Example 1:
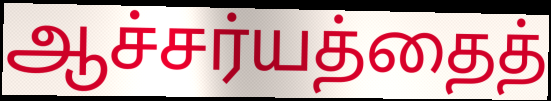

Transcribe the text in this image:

ஆச்சர்யத்தைத்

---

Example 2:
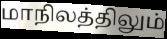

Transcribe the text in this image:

மாநிலத்திலும்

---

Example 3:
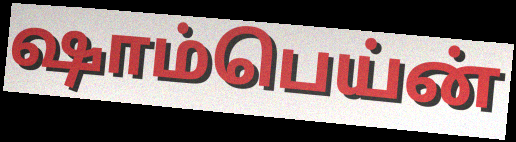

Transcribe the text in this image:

ஷாம்பெய்ன்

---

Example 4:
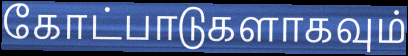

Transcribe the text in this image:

கோட்பாடுகளாகவும்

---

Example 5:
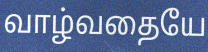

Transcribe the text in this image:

வாழ்வதையே